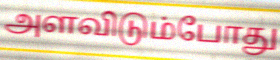
அளவிடும்போது